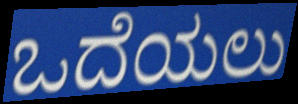
ಒದೆಯಲು